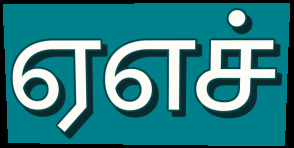
ஏஎச்